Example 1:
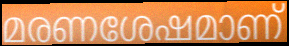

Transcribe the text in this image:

മരണശേഷമാണ്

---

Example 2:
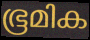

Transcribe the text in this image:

ഭൂമിക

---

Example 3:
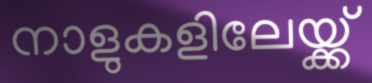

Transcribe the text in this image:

നാളുകളിലേയ്ക്ക്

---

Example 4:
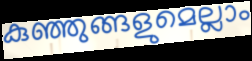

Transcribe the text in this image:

കുഞ്ഞുങ്ങളുമെല്ലാം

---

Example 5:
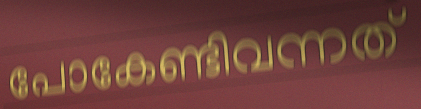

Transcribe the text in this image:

പോകേണ്ടിവന്നത്